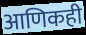
आणिकही